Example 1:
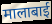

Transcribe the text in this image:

मालाबाई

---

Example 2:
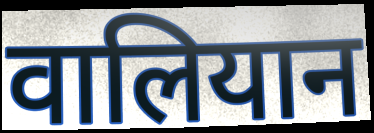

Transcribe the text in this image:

वालियान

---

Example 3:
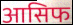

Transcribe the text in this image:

आसिफ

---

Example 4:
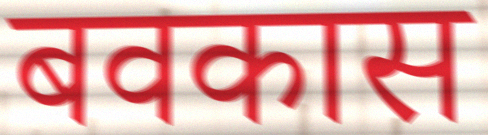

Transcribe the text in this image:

बवकास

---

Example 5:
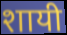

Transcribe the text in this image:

शायी